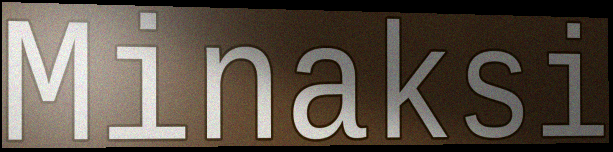
Minaksi